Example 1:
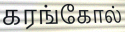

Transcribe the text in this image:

கரங்கோல்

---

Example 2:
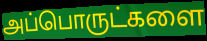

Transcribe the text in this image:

அப்பொருட்களை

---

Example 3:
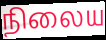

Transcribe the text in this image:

நிலைய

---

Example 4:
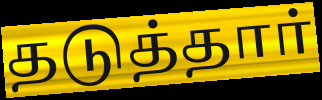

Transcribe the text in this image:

தடுத்தார்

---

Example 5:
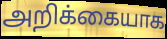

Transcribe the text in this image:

அறிக்கையாக